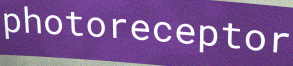
photoreceptor